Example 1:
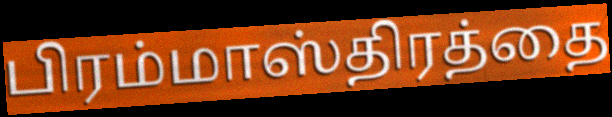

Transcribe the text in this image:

பிரம்மாஸ்திரத்தை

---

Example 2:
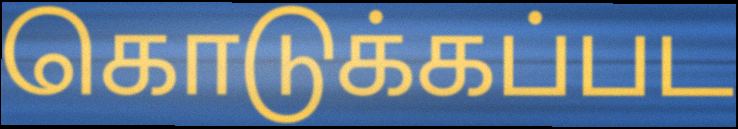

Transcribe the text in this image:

கொடுக்கப்பட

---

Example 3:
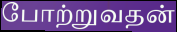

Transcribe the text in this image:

போற்றுவதன்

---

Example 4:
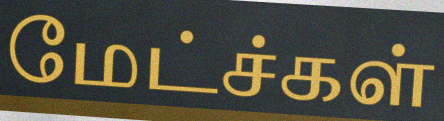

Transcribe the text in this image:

மேட்ச்கள்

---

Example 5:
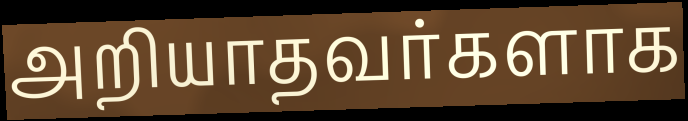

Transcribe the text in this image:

அறியாதவர்களாக